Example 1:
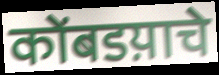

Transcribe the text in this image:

कोंबडय़ाचे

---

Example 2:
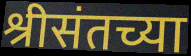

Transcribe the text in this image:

श्रीसंतच्या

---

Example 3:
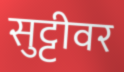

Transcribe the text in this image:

सुट्टीवर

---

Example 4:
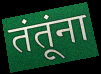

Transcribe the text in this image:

तंतूंना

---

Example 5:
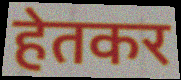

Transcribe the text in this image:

हेतकर